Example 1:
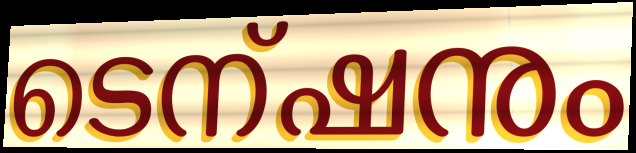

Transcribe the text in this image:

ടെന്ഷനും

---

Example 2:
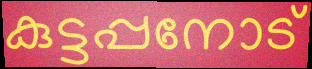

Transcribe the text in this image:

കുട്ടപ്പനോട്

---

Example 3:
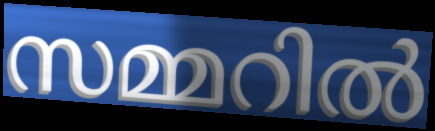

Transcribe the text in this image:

സമ്മറിൽ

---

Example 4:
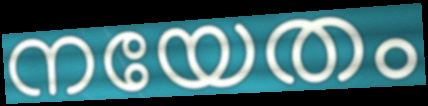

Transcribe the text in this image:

നയേതം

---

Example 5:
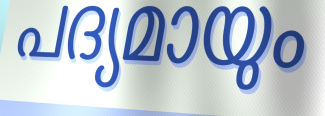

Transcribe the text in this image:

പദ്യമായും